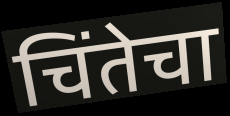
चिंतेचा